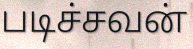
படிச்சவன்